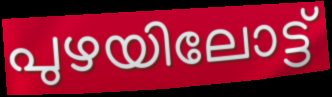
പുഴയിലോട്ട്